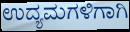
ಉದ್ಯಮಗಳಿಗಾಗಿ